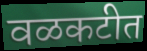
वळकटीत